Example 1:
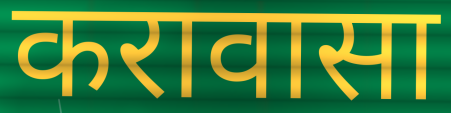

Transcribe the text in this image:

करावासा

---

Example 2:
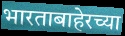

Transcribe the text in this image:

भारताबाहेरच्या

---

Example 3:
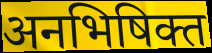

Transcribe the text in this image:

अनभिषिक्त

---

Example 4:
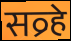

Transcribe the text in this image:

सव्र्हे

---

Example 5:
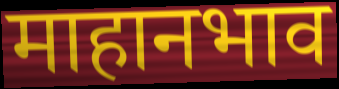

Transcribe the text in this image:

माहानभाव